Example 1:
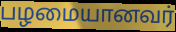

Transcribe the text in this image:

பழமையானவர்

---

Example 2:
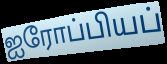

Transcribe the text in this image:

ஐரோப்பியப்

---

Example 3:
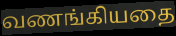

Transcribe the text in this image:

வணங்கியதை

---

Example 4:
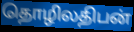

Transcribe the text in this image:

தொழிலதிபன்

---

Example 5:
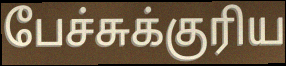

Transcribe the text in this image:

பேச்சுக்குரிய